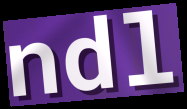
ndl